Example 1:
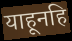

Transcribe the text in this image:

याहूनहि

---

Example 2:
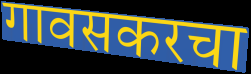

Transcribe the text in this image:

गावसकरचा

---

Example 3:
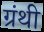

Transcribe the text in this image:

ग्रंथी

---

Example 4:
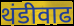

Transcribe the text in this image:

थंडीवाढ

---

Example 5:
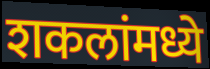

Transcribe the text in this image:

शकलांमध्ये